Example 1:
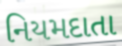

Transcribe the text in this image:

નિયમદાતા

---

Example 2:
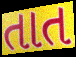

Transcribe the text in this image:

તાત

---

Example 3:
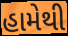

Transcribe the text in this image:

હામેથી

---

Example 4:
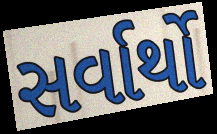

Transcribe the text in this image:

સર્વાર્થો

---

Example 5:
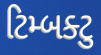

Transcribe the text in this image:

ટિમ્બક્ટુ